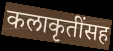
कलाकृतींसह